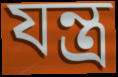
যন্ত্র